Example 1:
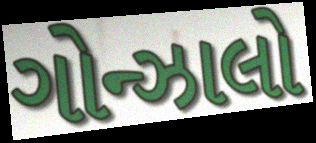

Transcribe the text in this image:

ગોન્ઝાલો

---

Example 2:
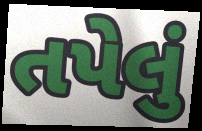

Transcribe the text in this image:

તપેલું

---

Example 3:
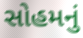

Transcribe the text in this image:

સોહમનું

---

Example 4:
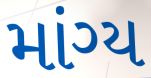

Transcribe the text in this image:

માંગ્ય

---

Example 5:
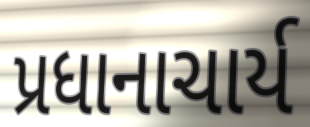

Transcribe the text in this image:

પ્રધાનાચાર્ય